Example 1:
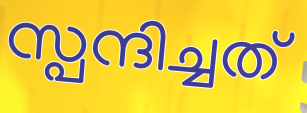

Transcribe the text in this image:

സ്പന്ദിച്ചത്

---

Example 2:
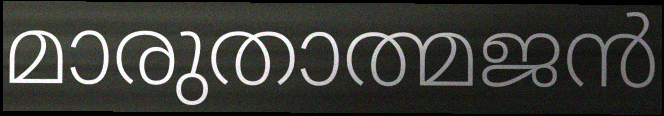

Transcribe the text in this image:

മാരുതാത്മജൻ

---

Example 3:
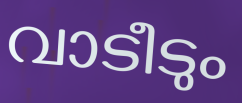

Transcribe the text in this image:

വാടീടും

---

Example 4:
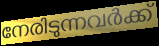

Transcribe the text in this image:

നേരിടുന്നവർക്ക്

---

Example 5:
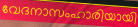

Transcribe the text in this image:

വേദനാസംഹാരിയായി